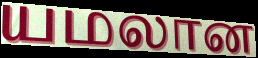
யமலான